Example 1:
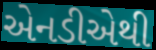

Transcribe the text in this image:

એનડીએથી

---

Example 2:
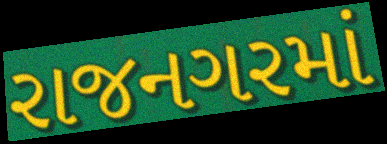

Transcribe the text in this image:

રાજનગરમાં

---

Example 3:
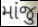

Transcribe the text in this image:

માંજુ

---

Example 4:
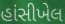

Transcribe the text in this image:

હાંસીખેલ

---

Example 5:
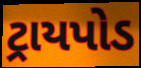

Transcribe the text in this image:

ટ્રાયપોડ